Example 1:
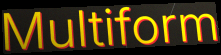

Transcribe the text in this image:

Multiform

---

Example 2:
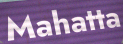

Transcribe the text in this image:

Mahatta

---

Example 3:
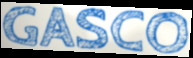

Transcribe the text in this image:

GASCO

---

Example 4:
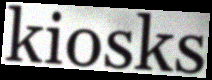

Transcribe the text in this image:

kiosks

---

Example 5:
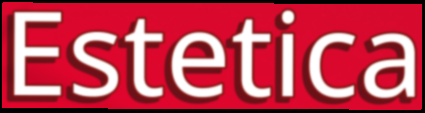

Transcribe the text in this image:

Estetica